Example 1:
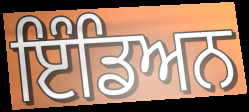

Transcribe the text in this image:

ਇੰਡਿਅਨ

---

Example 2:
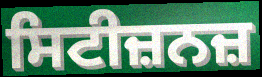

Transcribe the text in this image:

ਸਿਟੀਜ਼ਨਜ਼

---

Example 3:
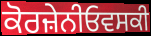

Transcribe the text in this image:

ਕੋਰਜ਼ੇਨੀਓਵਸਕੀ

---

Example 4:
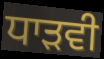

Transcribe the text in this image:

ਧਾੜਵੀ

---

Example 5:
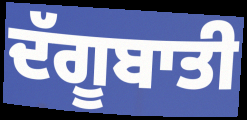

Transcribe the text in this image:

ਦੱਗੂਬਾਤੀ